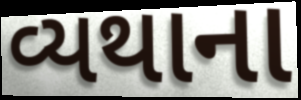
વ્યથાના